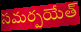
సమర్పయేత్